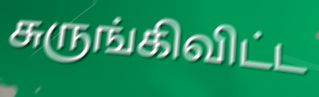
சுருங்கிவிட்ட